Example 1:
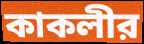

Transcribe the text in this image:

কাকলীর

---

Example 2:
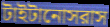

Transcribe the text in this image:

টাইটানোসরাস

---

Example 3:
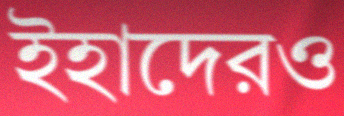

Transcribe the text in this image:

ইহাদেরও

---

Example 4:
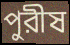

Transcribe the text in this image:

পুরীষ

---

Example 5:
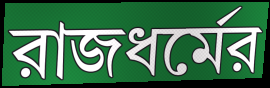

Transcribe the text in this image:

রাজধর্মের